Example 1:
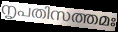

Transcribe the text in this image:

നൃപതിസത്തമഃ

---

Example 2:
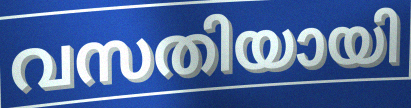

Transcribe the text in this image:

വസതിയായി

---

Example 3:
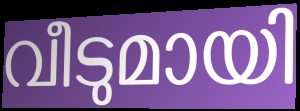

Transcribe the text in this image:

വീടുമായി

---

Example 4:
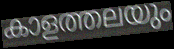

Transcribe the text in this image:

കാളത്തലയും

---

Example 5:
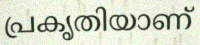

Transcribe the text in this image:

പ്രകൃതിയാണ്